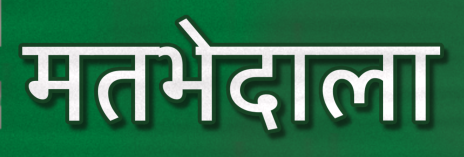
मतभेदाला